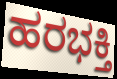
ಹರಭಕ್ತಿ